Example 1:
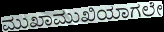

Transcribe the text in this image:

ಮುಖಾಮುಖಿಯಾಗಲೇ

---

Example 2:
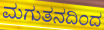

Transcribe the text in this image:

ಮಗುತನದಿಂದ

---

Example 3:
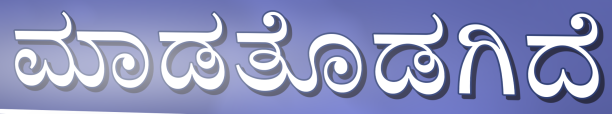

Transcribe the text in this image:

ಮಾಡತೊಡಗಿದೆ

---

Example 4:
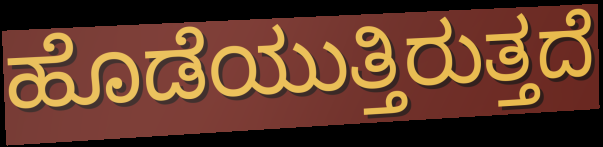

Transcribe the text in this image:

ಹೊಡೆಯುತ್ತಿರುತ್ತದೆ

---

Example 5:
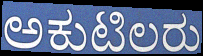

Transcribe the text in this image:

ಅಕುಟಿಲರು